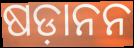
ଷଡ଼ାନନ